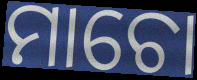
ମାଚୋ